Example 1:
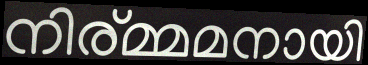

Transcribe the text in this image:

നിര്മ്മമനായി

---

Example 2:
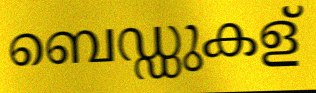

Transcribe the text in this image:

ബെഡ്ഡുകള്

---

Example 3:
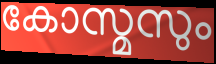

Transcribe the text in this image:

കോസ്മസും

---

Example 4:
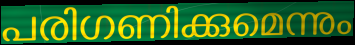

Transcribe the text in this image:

പരിഗണിക്കുമെന്നും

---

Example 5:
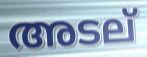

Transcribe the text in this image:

അടല്